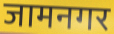
जामनगर